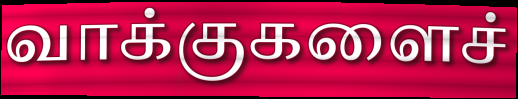
வாக்குகளைச்